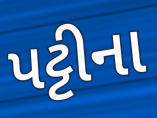
પટ્ટીના